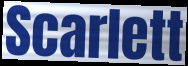
Scarlett